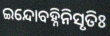
ଇନ୍ଦୋବହ୍ନିନିସୃତିଃ